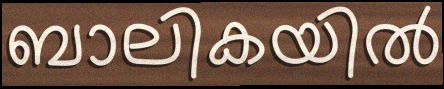
ബാലികയിൽ